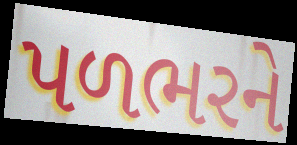
પળભરને